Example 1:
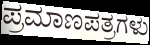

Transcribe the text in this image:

ಪ್ರಮಾಣಪತ್ರಗಳು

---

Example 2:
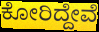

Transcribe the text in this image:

ಕೋರಿದ್ದೇವೆ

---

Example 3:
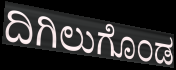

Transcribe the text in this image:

ದಿಗಿಲುಗೊಂಡ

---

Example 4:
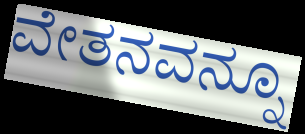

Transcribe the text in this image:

ವೇತನವನ್ನೂ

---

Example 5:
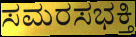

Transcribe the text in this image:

ಸಮರಸಭಕ್ತಿ